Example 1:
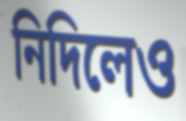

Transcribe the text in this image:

নিদিলেও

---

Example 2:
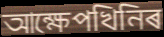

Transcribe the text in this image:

আক্ষেপখিনিৰ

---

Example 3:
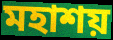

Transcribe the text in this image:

মহাশয়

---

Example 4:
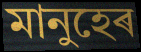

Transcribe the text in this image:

মানুহেৰ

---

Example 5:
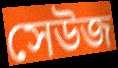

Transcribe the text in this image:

সেউজ